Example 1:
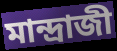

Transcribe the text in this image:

মান্দ্রাজী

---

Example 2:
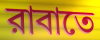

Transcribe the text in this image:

রাবাতে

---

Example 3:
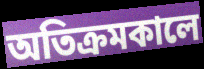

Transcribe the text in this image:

অতিক্রমকালে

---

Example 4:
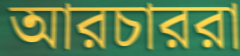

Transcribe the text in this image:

আরচাররা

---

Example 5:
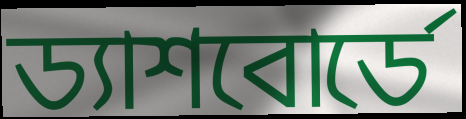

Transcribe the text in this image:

ড্যাশবোর্ডে